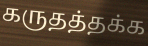
கருதத்தக்க